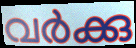
വർക്കു